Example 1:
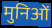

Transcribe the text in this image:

मुनिओं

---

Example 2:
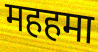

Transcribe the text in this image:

महहमा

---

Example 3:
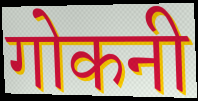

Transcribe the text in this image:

गोकनी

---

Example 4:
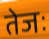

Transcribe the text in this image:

तेजः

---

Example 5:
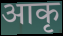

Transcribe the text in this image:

आकृ